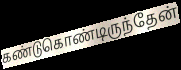
கண்டுகொண்டிருந்தேன்